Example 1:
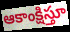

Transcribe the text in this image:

ఆకాంక్షిస్తూ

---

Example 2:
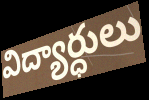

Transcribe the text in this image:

విద్యార్ధులు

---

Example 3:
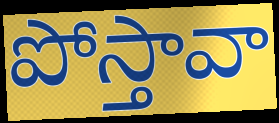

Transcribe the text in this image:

పోస్తావా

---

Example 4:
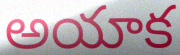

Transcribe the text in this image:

అయాక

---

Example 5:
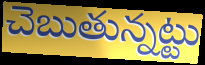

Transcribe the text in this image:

చెబుతున్నట్టు